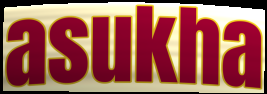
asukha